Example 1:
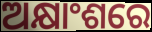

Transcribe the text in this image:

ଅକ୍ଷାଂଶରେ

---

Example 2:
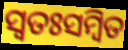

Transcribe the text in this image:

ସ୍ୱତଃସମ୍ବିତ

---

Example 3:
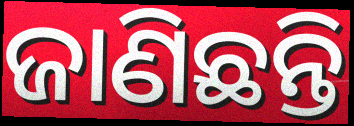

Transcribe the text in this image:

ଜାଣିଛନ୍ତି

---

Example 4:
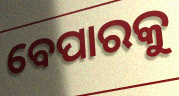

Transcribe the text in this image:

ବେପାରକୁ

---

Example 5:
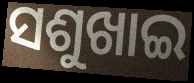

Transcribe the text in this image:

ସଶୁଖାଇ